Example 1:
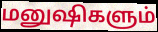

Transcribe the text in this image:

மனுஷிகளும்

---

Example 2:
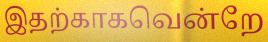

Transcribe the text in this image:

இதற்காகவென்றே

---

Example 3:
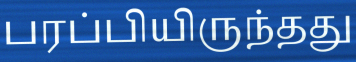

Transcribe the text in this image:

பரப்பியிருந்தது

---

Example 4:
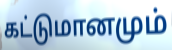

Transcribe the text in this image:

கட்டுமானமும்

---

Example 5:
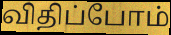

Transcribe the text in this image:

விதிப்போம்